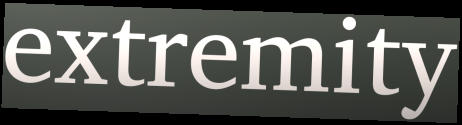
extremity